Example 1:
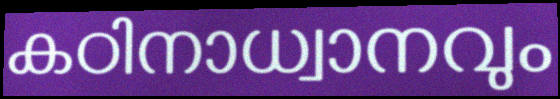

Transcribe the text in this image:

കഠിനാധ്വാനവും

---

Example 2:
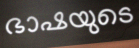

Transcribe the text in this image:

ഭാഷയുടെ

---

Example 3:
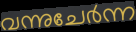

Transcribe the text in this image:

വന്നുചേർന്ന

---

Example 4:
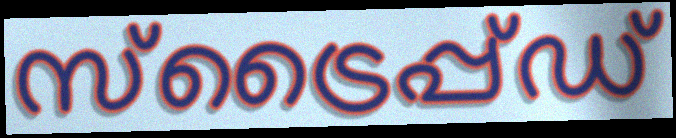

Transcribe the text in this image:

സ്ട്രൈപ്പ്ഡ്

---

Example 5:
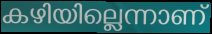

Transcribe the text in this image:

കഴിയില്ലെന്നാണ്